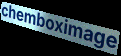
chemboximage